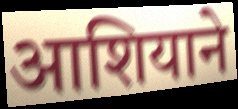
आशियाने